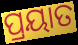
ପ୍ରୟାତ